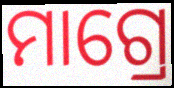
ମାଗ୍ରେ